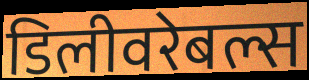
डिलीवरेबल्स